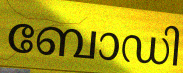
ബോഡി